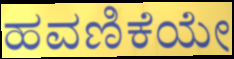
ಹವಣಿಕೆಯೇ